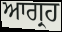
ਆਗ੍ਰਹ